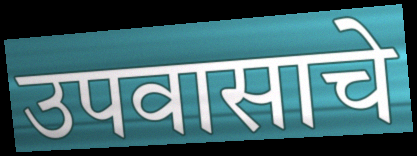
उपवासाचे